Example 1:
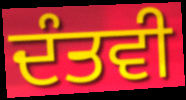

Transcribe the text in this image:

ਦੰਤਵੀ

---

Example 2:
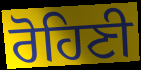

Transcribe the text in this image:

ਰੋਹਿਣੀ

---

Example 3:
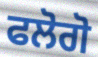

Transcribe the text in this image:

ਫਲੋਗੋ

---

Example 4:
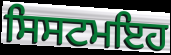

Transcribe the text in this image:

ਸਿਸਟਮਇਹ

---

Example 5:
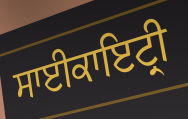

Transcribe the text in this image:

ਸਾਈਕਾਇਟ੍ਰੀ